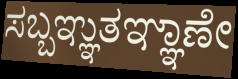
ಸಬ್ಬಞ್ಞುತಞ್ಞಾಣೇ